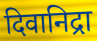
दिवानिद्रा